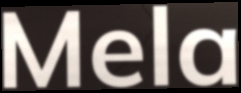
Mela